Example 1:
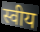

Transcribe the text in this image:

स्वीय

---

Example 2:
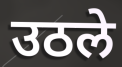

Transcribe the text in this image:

उठले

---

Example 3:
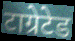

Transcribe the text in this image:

टाग्रेटेड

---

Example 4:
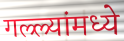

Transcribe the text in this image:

गल्ल्यांमध्ये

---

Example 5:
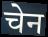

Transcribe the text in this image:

चेन